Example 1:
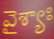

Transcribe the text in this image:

వైశ్యాః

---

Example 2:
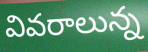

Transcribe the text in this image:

వివరాలున్న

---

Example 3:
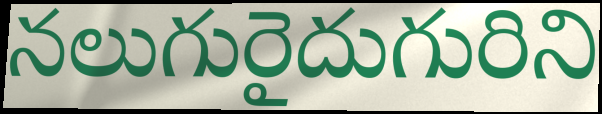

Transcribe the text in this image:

నలుగురైదుగురిని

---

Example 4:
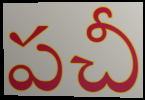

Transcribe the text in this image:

పచీ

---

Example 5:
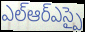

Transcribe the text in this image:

ఎల్ఆర్ఎస్పై